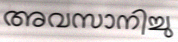
അവസാനിച്ചു